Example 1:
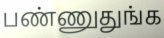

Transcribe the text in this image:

பண்ணுதுங்க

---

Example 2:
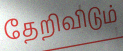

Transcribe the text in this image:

தேறிவிடும்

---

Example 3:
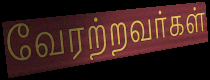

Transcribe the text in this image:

வேரற்றவர்கள்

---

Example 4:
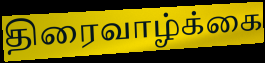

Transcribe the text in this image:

திரைவாழ்க்கை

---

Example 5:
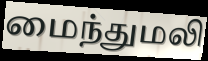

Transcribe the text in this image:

மைந்துமலி